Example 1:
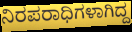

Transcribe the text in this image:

ನಿರಪರಾಧಿಗಳಾಗಿದ್ದ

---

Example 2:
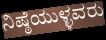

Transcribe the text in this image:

ನಿಷ್ಠೆಯುಳ್ಳವರು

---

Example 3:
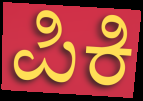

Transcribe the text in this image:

ಪಿಕಿ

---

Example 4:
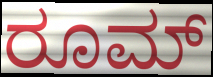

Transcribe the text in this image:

ರೂಮ್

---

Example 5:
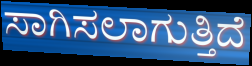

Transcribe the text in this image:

ಸಾಗಿಸಲಾಗುತ್ತಿದೆ